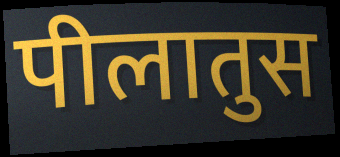
पीलातुस